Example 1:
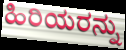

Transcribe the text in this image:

ಹಿರಿಯರನ್ನು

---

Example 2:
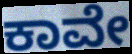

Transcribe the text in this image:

ಕಾವೇ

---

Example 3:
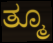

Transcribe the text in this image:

ತ್ಮೂ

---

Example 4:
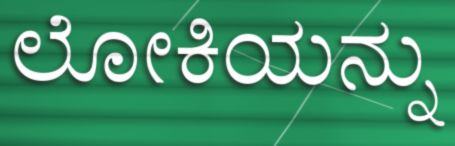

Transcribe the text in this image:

ಲೋಕಿಯನ್ನು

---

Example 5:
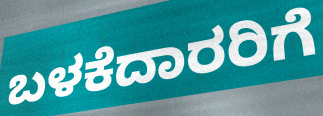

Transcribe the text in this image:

ಬಳಕೆದಾರರಿಗೆ